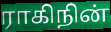
ராகிநின்